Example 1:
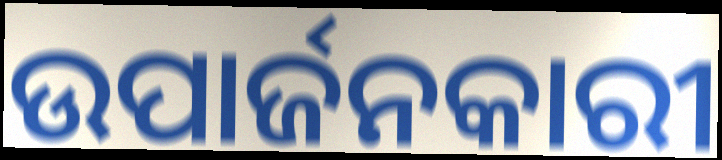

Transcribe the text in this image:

ଉପାର୍ଜନକାରୀ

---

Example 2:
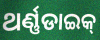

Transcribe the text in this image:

ଥର୍ଣ୍ଣଡାଇକ୍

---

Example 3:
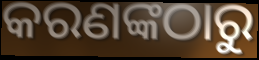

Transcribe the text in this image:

କରଣଙ୍କଠାରୁ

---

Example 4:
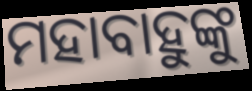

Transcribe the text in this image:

ମହାବାହୁଙ୍କୁ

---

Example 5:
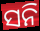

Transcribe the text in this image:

ସନି